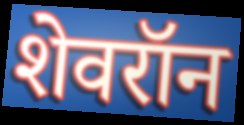
शेवरॉन